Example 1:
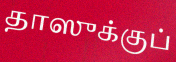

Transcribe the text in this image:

தாஸுக்குப்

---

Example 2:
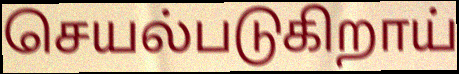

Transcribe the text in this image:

செயல்படுகிறாய்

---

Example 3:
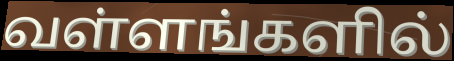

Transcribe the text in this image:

வள்ளங்களில்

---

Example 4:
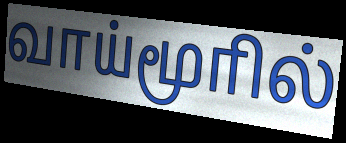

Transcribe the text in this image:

வாய்மூரில்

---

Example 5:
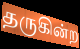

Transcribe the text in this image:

தருகின்ற